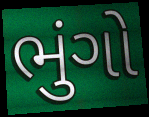
ભુંગો